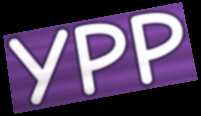
YPP